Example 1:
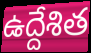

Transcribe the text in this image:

ఉద్దేశిత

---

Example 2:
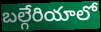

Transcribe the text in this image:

బల్గేరియాలో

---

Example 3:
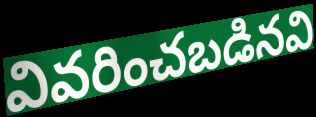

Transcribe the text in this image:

వివరించబడినవి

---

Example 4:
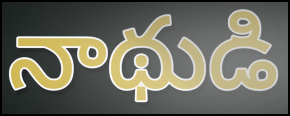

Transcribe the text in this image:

నాథుడి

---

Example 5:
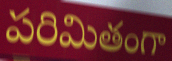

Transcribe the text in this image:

పరిమితంగా